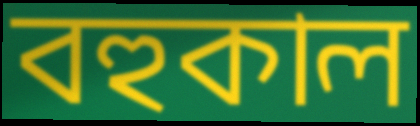
বহুকাল